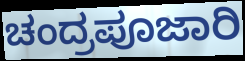
ಚಂದ್ರಪೂಜಾರಿ